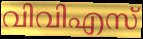
വിവിഎസ്